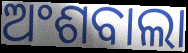
ଅଂଶବାଲା